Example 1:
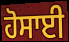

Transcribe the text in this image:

ਹੋਸਾਈ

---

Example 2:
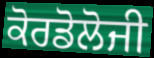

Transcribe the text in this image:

ਕੋਰਡੋਲੋਜੀ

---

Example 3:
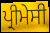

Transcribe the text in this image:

ਪ੍ਰੀਮੇਸੀ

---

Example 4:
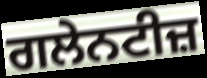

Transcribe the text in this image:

ਗਲੇਨਟੀਜ਼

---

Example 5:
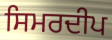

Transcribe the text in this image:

ਸਿਮਰਦੀਪ